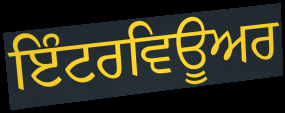
ਇੰਟਰਵਿਊਅਰ